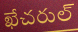
ఖేచరుల్